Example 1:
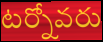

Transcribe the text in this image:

టర్నోవరు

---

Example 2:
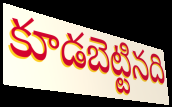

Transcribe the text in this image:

కూడబెట్టినది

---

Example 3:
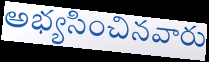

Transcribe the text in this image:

అభ్యసించినవారు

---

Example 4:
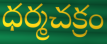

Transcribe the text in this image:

ధర్మచక్రం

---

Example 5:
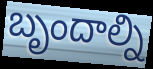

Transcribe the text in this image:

బృందాల్ని